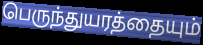
பெருந்துயரத்தையும்